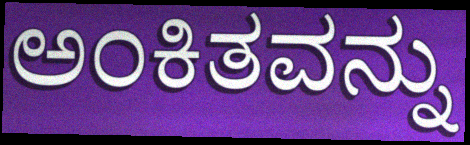
ಅಂಕಿತವನ್ನು